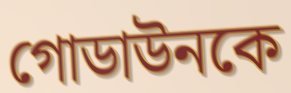
গোডাউনকে